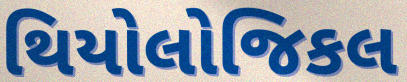
થિયોલોજિકલ